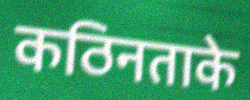
कठिनताके